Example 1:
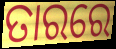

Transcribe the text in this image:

ତାରରେ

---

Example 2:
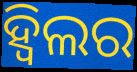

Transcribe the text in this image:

ହ୍ୱିଲର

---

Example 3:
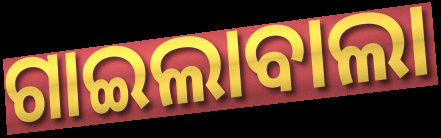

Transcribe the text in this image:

ଗାଇଲାବାଲା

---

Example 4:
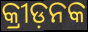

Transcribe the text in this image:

କ୍ରୀଡ଼ନକ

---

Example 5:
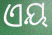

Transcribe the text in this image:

ଏୟ